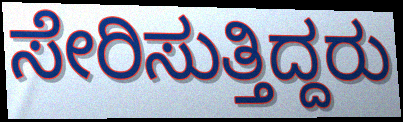
ಸೇರಿಸುತ್ತಿದ್ದರು